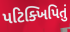
પટિક્ખિપિતું